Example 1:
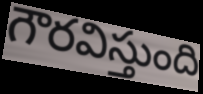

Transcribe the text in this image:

గౌరవిస్తుంది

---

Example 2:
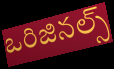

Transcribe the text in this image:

ఒరిజినల్స్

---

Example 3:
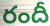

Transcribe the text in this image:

రందీ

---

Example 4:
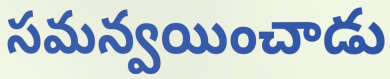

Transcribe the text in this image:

సమన్వయించాడు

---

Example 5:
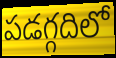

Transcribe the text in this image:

పడగ్గదిలో